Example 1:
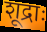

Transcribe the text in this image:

शूद्राः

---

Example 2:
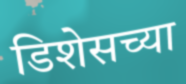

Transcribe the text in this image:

डिशेसच्या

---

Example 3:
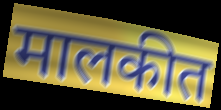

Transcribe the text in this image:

मालकीत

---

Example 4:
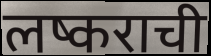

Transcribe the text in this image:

लष्कराची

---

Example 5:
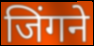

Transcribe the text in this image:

जिंगने